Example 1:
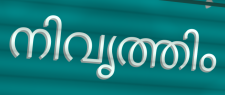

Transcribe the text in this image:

നിവൃത്തിം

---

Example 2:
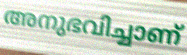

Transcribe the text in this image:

അനുഭവിച്ചാണ്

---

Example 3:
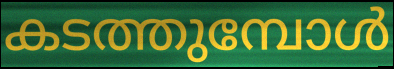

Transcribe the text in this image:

കടത്തുമ്പോൾ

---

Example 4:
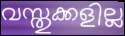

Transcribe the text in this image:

വസ്തുക്കളില്ല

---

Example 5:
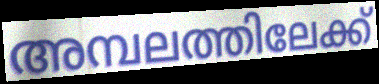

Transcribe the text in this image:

അമ്പലത്തിലേക്ക്